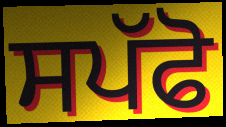
ਸਪੱਫੋ